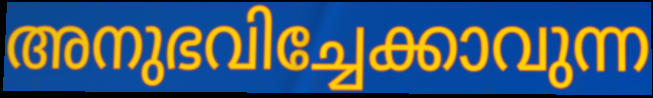
അനുഭവിച്ചേക്കാവുന്ന